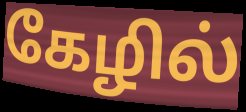
கேழில்